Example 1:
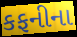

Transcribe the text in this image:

કફનીના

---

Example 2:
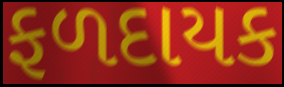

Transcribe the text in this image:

ફળદાયક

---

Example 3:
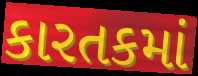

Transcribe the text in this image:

કારતકમાં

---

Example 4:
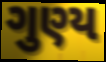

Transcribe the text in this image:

ગુણ્ય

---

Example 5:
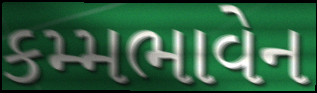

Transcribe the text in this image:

કમ્મભાવેન